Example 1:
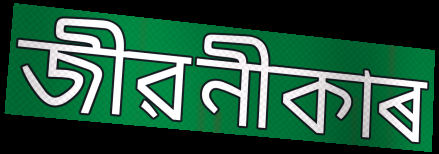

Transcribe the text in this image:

জীৱনীকাৰ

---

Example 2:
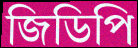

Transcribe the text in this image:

জিডিপি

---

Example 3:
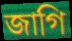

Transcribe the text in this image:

জাগি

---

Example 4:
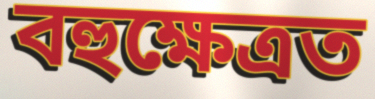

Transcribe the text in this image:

বহুক্ষেত্ৰত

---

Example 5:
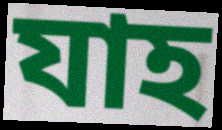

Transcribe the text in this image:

যাহ